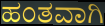
ಹಂತವಾಗಿ